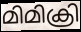
മിമിക്രി